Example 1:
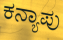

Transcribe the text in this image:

ಕನ್ಯಾಪು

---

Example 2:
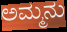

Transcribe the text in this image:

ಅಮ್ಮನು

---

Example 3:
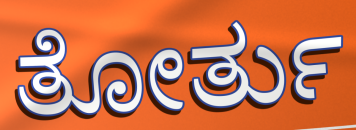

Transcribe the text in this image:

ತೋರ್ತು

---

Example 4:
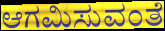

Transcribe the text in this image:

ಆಗಮಿಸುವಂತೆ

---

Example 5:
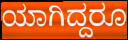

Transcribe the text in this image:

ಯಾಗಿದ್ದರೂ